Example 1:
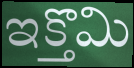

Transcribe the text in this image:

ఇక్తొమి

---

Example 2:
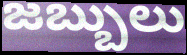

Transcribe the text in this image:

జబ్బులు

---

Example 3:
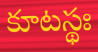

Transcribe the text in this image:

కూటస్థః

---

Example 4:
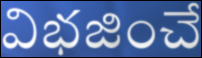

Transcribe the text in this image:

విభజించే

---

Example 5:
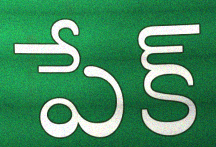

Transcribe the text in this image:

పేక్